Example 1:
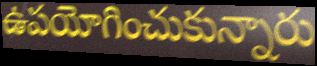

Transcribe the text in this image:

ఉపయోగించుకున్నారు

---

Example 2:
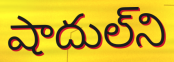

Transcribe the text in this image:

షాదుల్‌ని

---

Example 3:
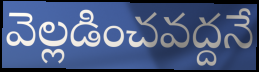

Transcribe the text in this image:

వెల్లడించవద్దనే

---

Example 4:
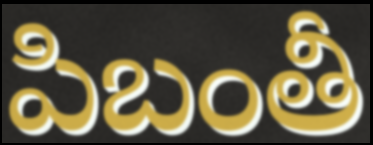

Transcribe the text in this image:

పిబంతీ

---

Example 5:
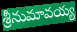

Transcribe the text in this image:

శ్రీనుమావయ్య